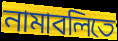
নামাবলিতে